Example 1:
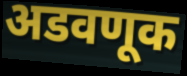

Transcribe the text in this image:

अडवणूक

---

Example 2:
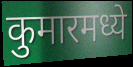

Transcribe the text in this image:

कुमारमध्ये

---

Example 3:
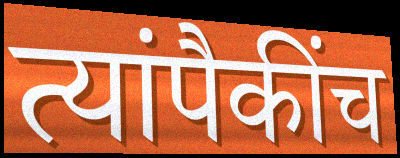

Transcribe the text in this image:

त्यांपैकींच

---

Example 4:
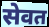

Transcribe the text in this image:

सेवत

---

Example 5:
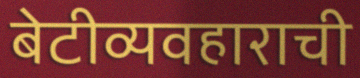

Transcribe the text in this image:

बेटीव्यवहाराची